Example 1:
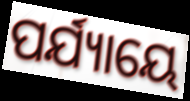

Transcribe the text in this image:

ପର୍ଯ୍ୟାୟେ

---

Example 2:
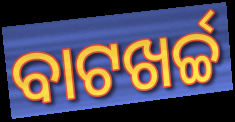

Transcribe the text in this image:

ବାଟଖର୍ଚ୍ଚ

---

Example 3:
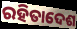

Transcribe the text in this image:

ରହିତାଦେଶ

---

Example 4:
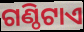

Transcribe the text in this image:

ଗଣ୍ଠିଟାଏ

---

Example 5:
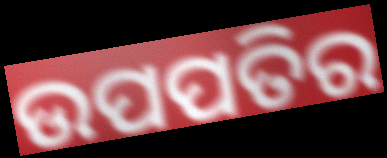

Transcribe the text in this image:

ଉପପତିର